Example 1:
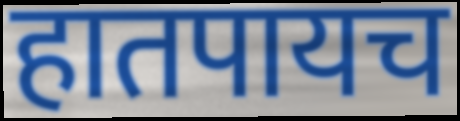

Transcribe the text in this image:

हातपायच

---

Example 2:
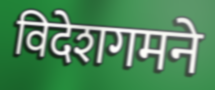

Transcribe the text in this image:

विदेशगमने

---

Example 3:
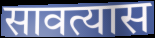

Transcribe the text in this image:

सावत्यास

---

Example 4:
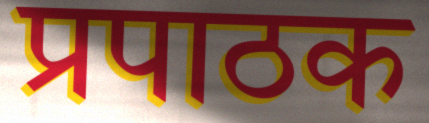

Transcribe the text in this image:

प्रपाठक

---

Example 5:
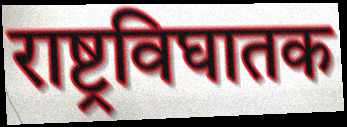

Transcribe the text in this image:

राष्ट्रविघातक